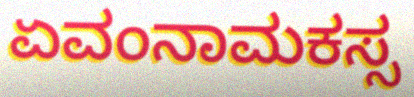
ಏವಂನಾಮಕಸ್ಸ